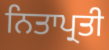
ਨਿਤਾਪ੍ਰਤੀ